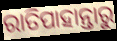
ରାତିପାହାନ୍ତାରୁ